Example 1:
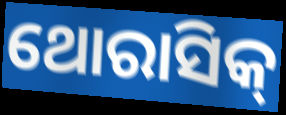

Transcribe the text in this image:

ଥୋରାସିକ୍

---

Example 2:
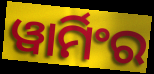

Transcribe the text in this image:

ୱାର୍ମିଂର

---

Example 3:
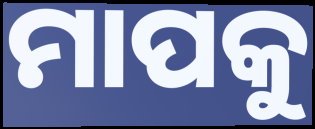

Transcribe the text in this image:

ମାପକୁ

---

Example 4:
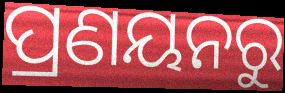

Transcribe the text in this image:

ପ୍ରଣୟନରୁ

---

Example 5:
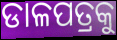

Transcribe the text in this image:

ଡାଳପତ୍ରକୁ